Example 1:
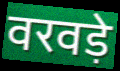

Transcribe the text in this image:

वरवड़े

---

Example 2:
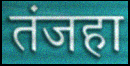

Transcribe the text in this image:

तंजहा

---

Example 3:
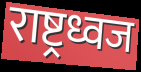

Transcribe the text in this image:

राष्ट्रध्वज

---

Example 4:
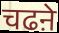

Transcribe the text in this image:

चढऩे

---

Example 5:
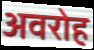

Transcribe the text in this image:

अवरोह